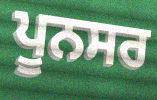
ਪੂਨਸਰ